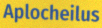
Aplocheilus